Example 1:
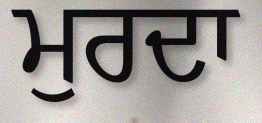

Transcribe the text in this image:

ਮੁਰਦਾ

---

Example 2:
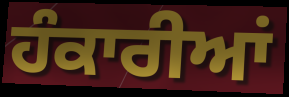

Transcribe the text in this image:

ਹੰਕਾਰੀਆਂ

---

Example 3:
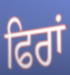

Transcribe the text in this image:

ਫਿਰਾਂ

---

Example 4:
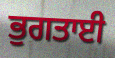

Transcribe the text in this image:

ਭੁਗਤਾਈ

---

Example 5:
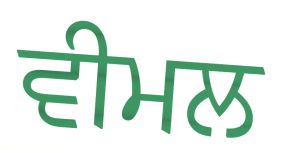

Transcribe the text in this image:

ਵੀਮਲ